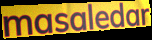
masaledar